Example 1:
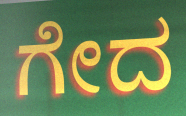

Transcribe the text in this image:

ಗೇದ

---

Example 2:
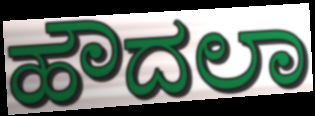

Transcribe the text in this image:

ಹೌದಲಾ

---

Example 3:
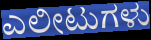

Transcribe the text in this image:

ಎಲೀಟುಗಳು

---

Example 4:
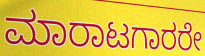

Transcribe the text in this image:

ಮಾರಾಟಗಾರರೇ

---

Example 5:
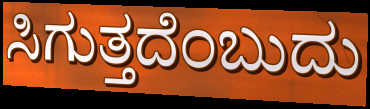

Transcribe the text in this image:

ಸಿಗುತ್ತದೆಂಬುದು